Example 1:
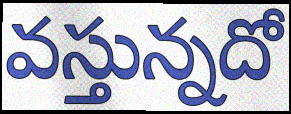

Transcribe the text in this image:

వస్తున్నదో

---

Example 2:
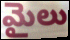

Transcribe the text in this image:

మైలు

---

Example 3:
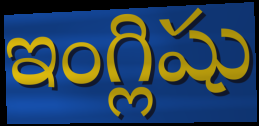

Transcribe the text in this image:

ఇంగ్లిషు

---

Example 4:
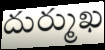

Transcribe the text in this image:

దుర్ముఖ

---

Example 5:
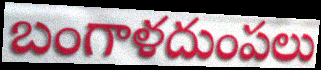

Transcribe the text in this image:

బంగాళదుంపలు